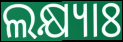
ଲକ୍ଷ୍ୟାଃ